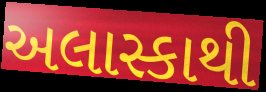
અલાસ્કાથી